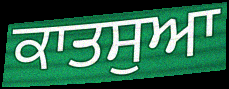
ਕਾਤਸੁਆ